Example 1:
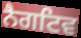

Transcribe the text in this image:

ਨੈਗਟਿਵ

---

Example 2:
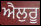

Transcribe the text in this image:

ਐਲੁਰੂ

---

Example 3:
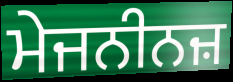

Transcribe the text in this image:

ਮੇਜਨੀਨਜ਼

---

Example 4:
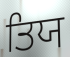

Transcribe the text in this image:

ਤਿਯ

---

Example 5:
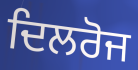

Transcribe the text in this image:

ਦਿਲਰੋਜ